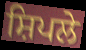
ਸ਼ਿਪਲੇ